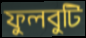
ফুলবুটি